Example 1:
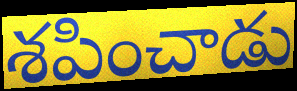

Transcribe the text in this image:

శపించాడు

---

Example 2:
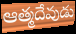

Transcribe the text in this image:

ఆత్మదేవుడు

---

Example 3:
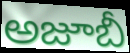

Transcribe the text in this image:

అజూబీ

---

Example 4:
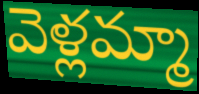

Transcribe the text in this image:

వెళ్లమ్మా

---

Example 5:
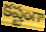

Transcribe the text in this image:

కష్టంగా